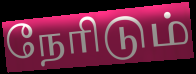
நேரிடும்